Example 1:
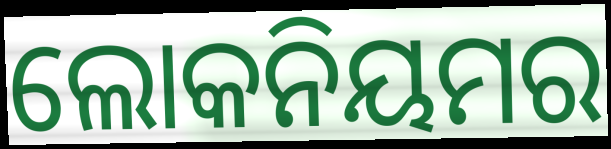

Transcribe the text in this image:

ଲୋକନିୟମର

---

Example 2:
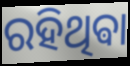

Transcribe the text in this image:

ରହିଥିଵା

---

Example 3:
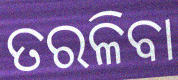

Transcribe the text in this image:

ତରଳିବା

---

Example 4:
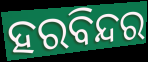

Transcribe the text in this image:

ହରବିନ୍ଦର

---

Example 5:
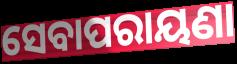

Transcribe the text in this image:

ସେବାପରାୟଣା